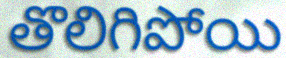
తొలిగిపోయి